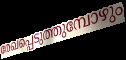
രേഖപ്പെടുത്തുമ്പോഴും